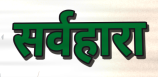
सर्वहारा